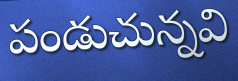
పండుచున్నవి